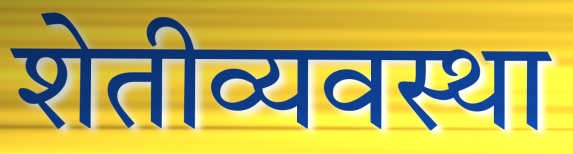
शेतीव्यवस्था